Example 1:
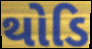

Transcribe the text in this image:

થોડિ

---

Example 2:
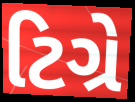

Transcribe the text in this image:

ટિગ્રે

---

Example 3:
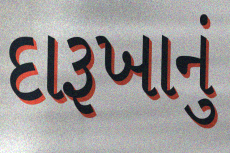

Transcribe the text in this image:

દારૂખાનું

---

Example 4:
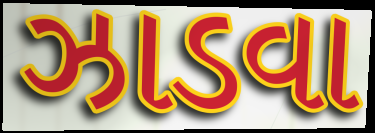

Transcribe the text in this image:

ઝાડવા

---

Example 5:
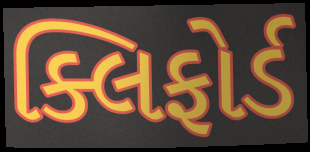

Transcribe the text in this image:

ક્લિફોર્ડ